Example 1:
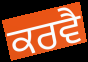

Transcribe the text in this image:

ਕਰਵੈ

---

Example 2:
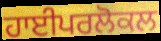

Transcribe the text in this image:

ਹਾਈਪਰਲੋਕਲ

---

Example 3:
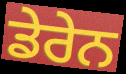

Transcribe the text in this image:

ਡੇਰੇਨ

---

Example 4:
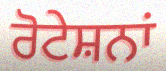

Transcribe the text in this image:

ਰੋਟੇਸ਼ਨਾਂ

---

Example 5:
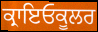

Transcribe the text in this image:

ਕ੍ਰਾਇਓਕੂਲਰ